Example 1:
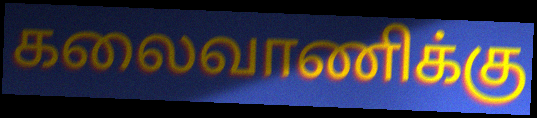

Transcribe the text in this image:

கலைவாணிக்கு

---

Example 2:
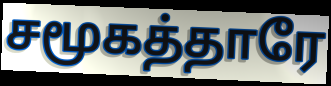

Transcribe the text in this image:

சமூகத்தாரே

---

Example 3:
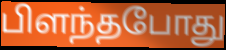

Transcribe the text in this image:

பிளந்தபோது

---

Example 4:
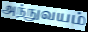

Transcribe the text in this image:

அந்நுவயம்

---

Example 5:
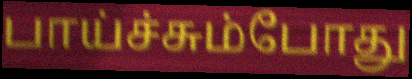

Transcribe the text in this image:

பாய்ச்சும்போது